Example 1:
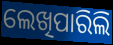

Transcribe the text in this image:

ଲେଖିପାରିଲି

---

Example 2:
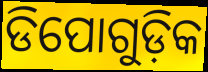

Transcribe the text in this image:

ଡିପୋଗୁଡ଼ିକ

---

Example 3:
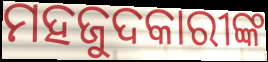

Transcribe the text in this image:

ମହଜୁଦକାରୀଙ୍କ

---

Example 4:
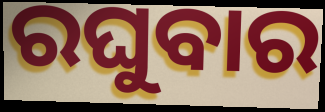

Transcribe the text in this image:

ରଘୁବାର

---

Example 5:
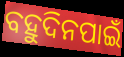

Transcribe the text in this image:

ବହୁଦିନପାଇଁ